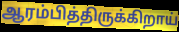
ஆரம்பித்திருக்கிறாய்